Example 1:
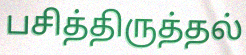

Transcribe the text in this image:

பசித்திருத்தல்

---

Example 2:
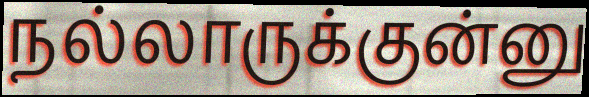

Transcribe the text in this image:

நல்லாருக்குன்னு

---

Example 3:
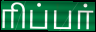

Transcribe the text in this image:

ரிப்பர்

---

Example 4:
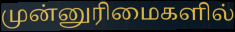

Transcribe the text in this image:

முன்னுரிமைகளில்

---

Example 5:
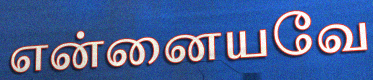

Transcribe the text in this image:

என்னையவே